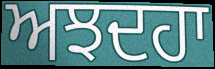
ਅਝਦਹਾ